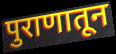
पुराणातून